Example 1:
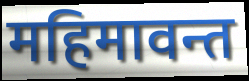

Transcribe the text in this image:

महिमावन्त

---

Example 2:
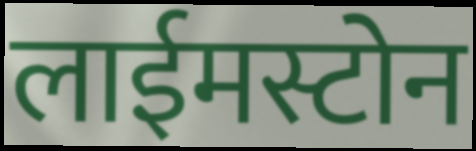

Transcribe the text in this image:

लाईमस्टोन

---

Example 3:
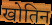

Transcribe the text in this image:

खोतिन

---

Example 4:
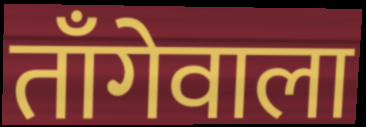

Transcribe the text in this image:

ताँगेवाला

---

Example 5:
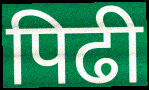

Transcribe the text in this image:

पिढी